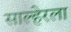
साल्हेरला